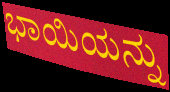
ಭಾಯಿಯನ್ನು